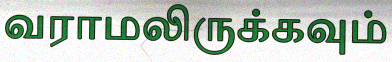
வராமலிருக்கவும்